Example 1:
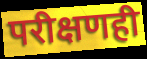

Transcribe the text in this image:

परीक्षणही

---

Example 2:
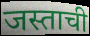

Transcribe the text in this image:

जस्ताची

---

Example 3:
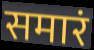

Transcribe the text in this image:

समारं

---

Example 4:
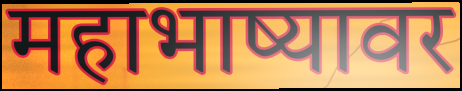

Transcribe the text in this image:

महाभाष्यावर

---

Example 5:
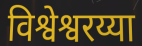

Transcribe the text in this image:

विश्वेश्वरय्या